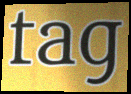
tag